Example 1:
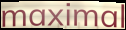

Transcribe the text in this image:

maximal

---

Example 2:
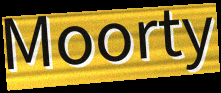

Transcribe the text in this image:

Moorty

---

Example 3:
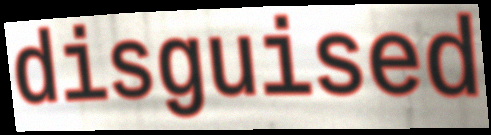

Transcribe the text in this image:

disguised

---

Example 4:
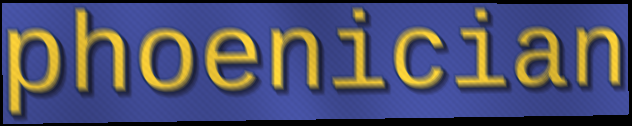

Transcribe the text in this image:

phoenician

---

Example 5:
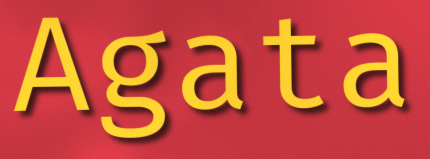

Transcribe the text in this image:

Agata